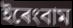
ইৰেংবাম